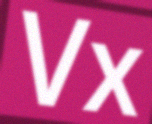
Vx